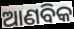
ଆଣବିକ